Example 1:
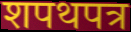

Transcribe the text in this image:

शपथपत्र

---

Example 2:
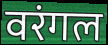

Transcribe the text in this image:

वरंगल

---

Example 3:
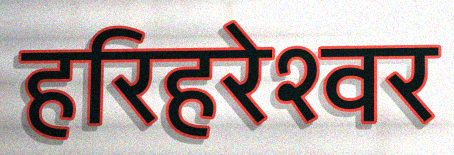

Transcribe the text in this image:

हरिहरेश्वर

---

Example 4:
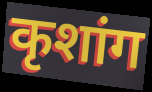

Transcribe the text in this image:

कृशांग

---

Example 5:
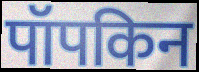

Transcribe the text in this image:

पॉपकिन